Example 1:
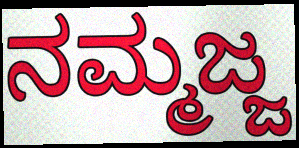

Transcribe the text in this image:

ನಮ್ಮಜ್ಜ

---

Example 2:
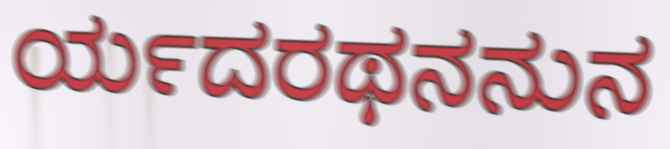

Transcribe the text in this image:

ರ್ಯದರಥನನುನ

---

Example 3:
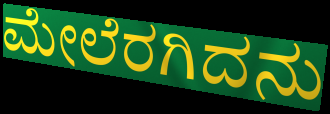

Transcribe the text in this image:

ಮೇಲೆರಗಿದನು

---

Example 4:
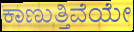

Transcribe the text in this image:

ಕಾಣುತ್ತಿವೆಯೇ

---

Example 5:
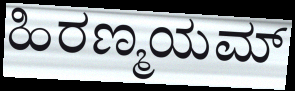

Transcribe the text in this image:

ಹಿರಣ್ಮಯಮ್